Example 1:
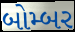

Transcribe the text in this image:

બોમ્બર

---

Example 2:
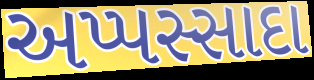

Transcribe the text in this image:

અપ્પસ્સાદા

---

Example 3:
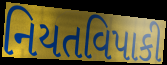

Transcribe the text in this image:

નિયતવિપાકી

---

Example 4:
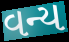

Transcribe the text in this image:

વન્ય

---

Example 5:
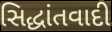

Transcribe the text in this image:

સિદ્ધાંતવાદી